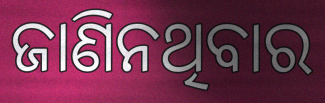
ଜାଣିନଥିବାର